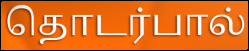
தொடர்பால்